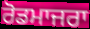
ਰੋਡਮਾਜਰਾ